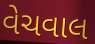
વેચવાલ